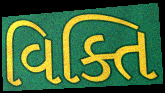
વિક્તિ